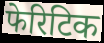
फेरिटिक